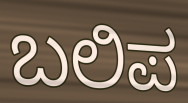
ಬಲಿಪ